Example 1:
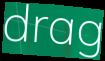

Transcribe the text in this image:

drag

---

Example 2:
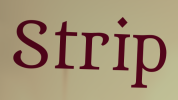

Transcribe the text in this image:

Strip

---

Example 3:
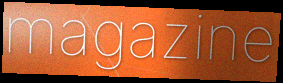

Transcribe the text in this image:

magazine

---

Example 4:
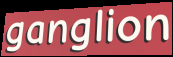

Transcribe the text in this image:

ganglion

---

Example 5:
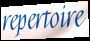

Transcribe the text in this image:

repertoire